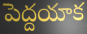
పెద్దయాక